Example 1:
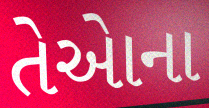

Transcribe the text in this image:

તેએાના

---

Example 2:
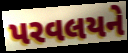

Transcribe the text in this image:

પરવલયને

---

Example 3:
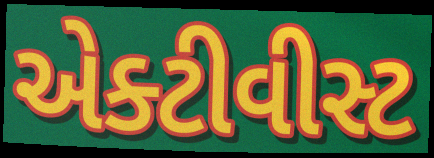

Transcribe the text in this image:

એક્ટીવીસ્ટ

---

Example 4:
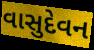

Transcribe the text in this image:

વાસુદેવન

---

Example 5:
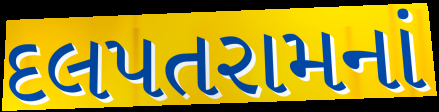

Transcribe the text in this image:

દલપતરામનાં